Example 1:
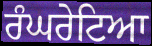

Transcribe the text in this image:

ਰੰਘਰੇਟਿਆ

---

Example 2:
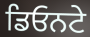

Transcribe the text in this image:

ਡਿਓਨਟੇ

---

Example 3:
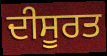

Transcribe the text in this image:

ਦੀਸੂਰਤ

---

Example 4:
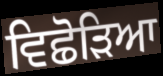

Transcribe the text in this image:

ਵਿਛੋੜਿਆ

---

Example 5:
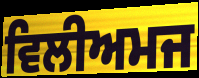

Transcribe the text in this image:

ਵਿਲੀਅਮਜ